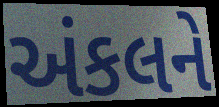
અંકલને